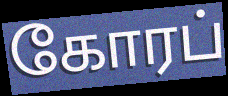
கோரப்